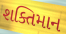
શક્તિમાન